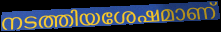
നടത്തിയശേഷമാണ്